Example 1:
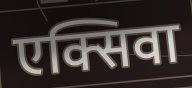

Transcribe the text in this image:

एक्सिवा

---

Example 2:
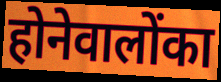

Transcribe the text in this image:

होनेवालोंका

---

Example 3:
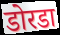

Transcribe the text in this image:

डोरडा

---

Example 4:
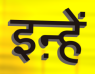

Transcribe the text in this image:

इऩ्हें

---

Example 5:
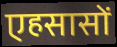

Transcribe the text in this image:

एहसासों